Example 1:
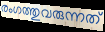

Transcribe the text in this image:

രംഗത്തുവരുന്നത്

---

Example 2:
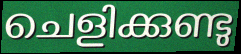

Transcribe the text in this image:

ചെളിക്കുണ്ടു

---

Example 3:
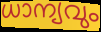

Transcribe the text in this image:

ധാന്യവും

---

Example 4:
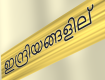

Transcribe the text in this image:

ഇന്ദ്രിയങ്ങളില്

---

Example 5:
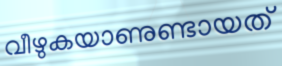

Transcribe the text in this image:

വീഴുകയാണുണ്ടായത്